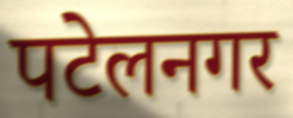
पटेलनगर